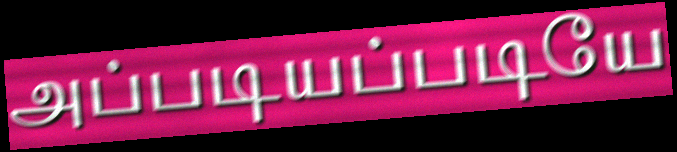
அப்படியப்படியே